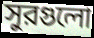
সুরগুলো